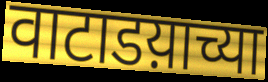
वाटाडय़ाच्या